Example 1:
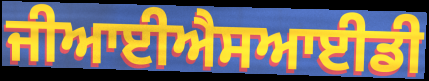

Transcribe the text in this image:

ਜੀਆਈਐਸਆਈਡੀ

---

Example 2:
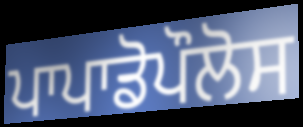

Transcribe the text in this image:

ਪਾਪਾਡੋਪੌਲੋਸ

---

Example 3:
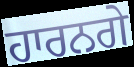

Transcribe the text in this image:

ਹਾਰਨਗੇ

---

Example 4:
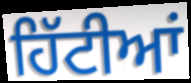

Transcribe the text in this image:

ਹਿੱਟੀਆਂ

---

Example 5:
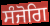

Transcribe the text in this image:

ਸੰਜੋਗਿ